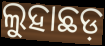
ଲୁହାଛଡ଼